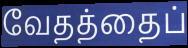
வேதத்தைப்